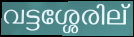
വട്ടശ്ശേരില്